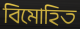
বিমোহিত